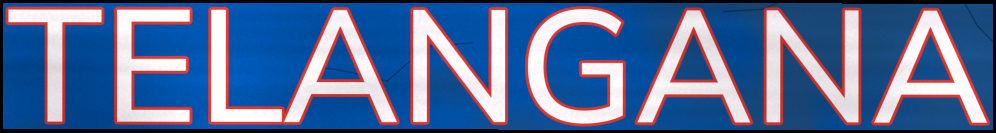
TELANGANA